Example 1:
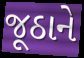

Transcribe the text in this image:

જૂઠાને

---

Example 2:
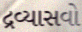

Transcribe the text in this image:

દ્રવ્યાસવો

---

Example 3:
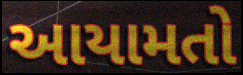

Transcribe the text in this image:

આયામતો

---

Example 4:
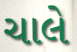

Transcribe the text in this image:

ચાલે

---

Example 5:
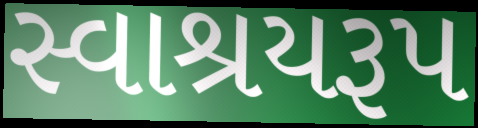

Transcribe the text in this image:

સ્વાશ્રયરૂપ